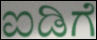
ಐಡಿಗೆ